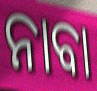
ନାବା